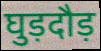
घुड़दौड़